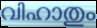
വിഹാതും